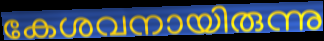
കേശവനായിരുന്നു